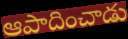
ఆపాదించాడు